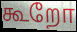
கூறோ